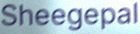
Sheegepal